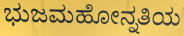
ಭುಜಮಹೋನ್ನತಿಯ